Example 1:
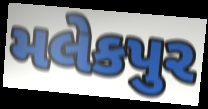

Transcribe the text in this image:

મલેકપુર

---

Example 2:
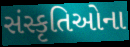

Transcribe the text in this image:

સંસ્કૃતિઓના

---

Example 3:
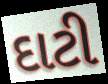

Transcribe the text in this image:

દાટી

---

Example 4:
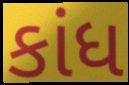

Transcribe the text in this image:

કાંધ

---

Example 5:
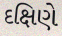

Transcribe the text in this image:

દક્ષિણે